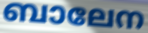
ബാലേന